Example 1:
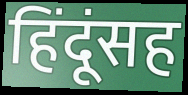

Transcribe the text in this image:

हिंदूंसह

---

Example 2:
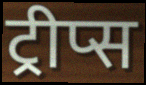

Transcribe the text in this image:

ट्रीप्स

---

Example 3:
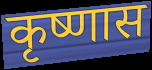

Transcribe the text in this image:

कृष्णास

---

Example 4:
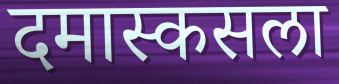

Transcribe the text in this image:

दमास्कसला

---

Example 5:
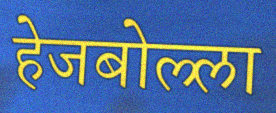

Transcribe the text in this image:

हेजबोल्ला